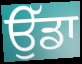
ਉੱਡਾ